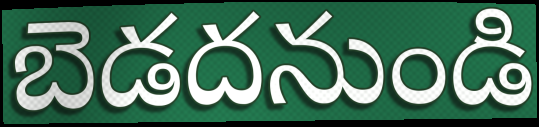
బెడదనుండి